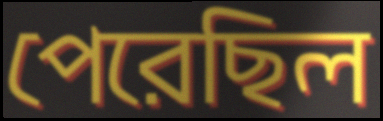
পেরেছিল